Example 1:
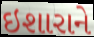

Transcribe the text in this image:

ઇશારાને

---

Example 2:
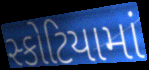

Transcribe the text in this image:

સ્કોટિયામાં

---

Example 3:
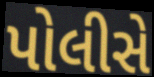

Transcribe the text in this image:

પોલીસે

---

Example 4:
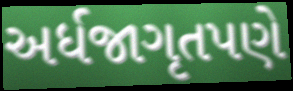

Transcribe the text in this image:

અર્ધજાગૃતપણે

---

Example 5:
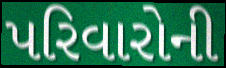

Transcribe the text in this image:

પરિવારોની